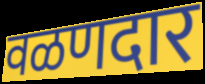
वळणदार